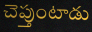
చెప్తుంటాడు